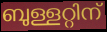
ബുള്ളറ്റിന്